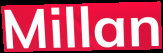
Millan